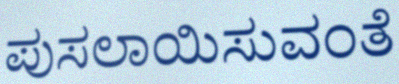
ಪುಸಲಾಯಿಸುವಂತೆ